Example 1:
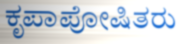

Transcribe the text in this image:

ಕೃಪಾಪೋಷಿತರು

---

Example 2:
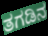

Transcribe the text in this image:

ತಗಡಿನ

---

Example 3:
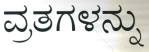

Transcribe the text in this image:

ವ್ರತಗಳನ್ನು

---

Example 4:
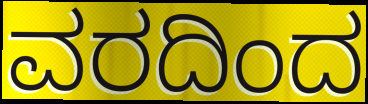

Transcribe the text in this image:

ವರದಿಂದ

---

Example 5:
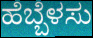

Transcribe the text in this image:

ಹೆಬ್ಬೆಳಸು